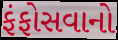
ફંફોસવાનો